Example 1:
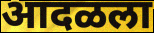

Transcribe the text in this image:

आदळला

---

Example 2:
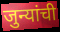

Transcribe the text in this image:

जुन्यांची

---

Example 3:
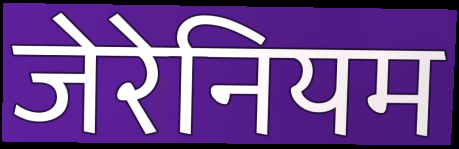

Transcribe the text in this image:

जेरेनियम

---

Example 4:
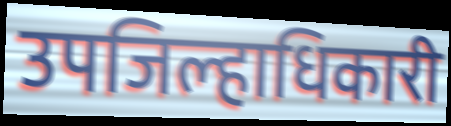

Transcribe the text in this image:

उपजिल्हाधिकारी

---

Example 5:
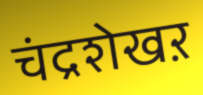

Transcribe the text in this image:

चंद्रशेखऱ